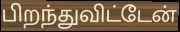
பிறந்துவிட்டேன்